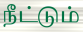
நீட்டும்